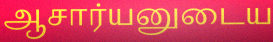
ஆசார்யனுடைய